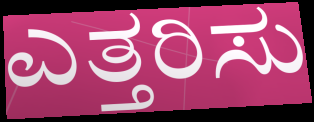
ಎತ್ತರಿಸು